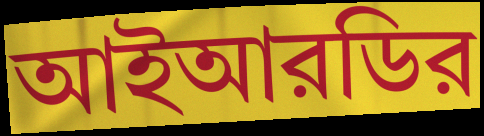
আইআরডির